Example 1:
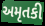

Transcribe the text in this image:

અમૃતકી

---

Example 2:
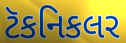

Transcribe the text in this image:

ટૅકનિકલર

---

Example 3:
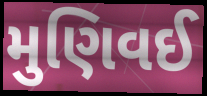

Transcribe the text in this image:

મુણિવઈ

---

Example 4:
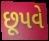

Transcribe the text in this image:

છૂપવે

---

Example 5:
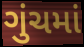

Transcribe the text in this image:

ગુંચમાં